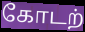
கோடற்